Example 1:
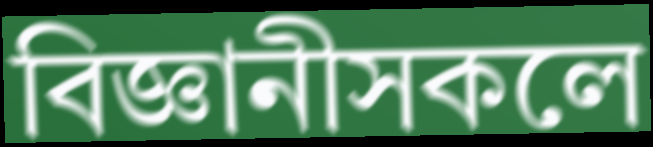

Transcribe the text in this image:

বিজ্ঞানীসকলে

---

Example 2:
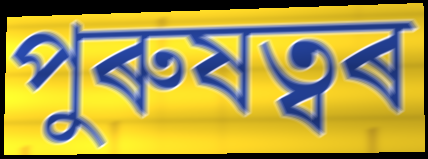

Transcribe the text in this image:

পুৰুষত্বৰ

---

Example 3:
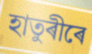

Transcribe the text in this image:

হাতুৰীৰে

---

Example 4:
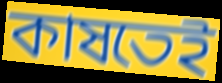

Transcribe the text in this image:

কাষতেই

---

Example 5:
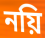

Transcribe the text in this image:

নয়ি